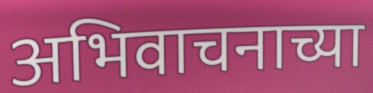
अभिवाचनाच्या